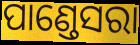
ପାଣ୍ଡେସରା